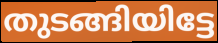
തുടങ്ങിയിട്ടേ